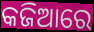
କଜିଆରେ